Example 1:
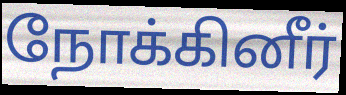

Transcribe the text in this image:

நோக்கினீர்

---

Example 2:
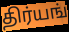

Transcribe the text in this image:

திர்யங்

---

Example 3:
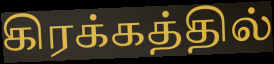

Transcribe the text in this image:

கிரக்கத்தில்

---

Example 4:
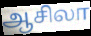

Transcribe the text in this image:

ஆசிலா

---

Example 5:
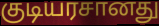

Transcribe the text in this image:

குடியரசானது